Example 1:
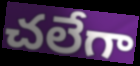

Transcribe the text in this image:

చలేగా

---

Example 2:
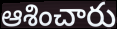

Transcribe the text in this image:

ఆశించారు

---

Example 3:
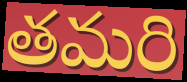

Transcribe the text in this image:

తమరి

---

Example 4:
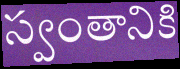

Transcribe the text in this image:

స్వంతానికి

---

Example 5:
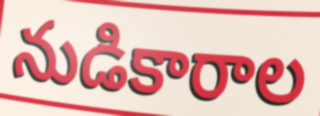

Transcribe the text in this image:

నుడికారాల